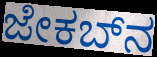
ಜೇಕಬ್‌ನ